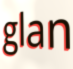
glan